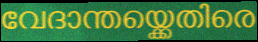
വേദാന്തയ്ക്കെതിരെ